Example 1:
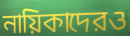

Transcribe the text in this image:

নায়িকাদেরও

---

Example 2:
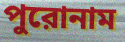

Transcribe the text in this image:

পুরোনাম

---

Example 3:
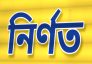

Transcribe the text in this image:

নির্ণত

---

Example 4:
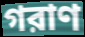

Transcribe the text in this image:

গরাণ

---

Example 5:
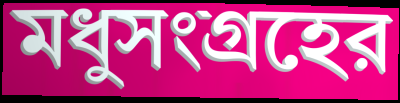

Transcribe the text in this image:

মধুসংগ্রহের